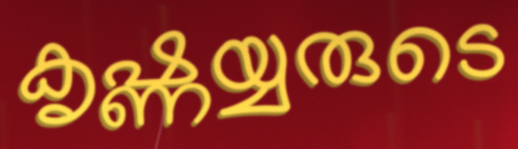
കൃഷ്ണയ്യരുടെ